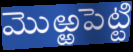
మొఱ్ఱపెట్టి